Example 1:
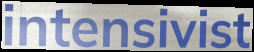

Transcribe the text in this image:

intensivist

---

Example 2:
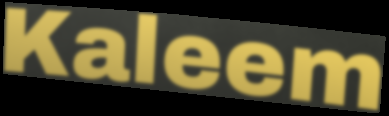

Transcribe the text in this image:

Kaleem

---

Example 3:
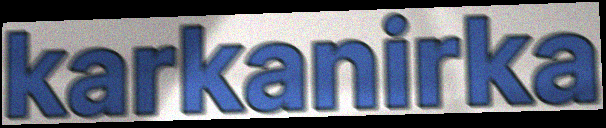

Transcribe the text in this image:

karkanirka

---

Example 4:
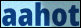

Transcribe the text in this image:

aahot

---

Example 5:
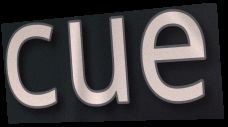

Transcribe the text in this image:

cue